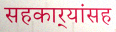
सहकार्यांसह